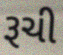
રૂચી